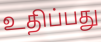
உதிப்பது